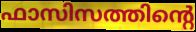
ഫാസിസത്തിന്റെ